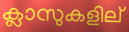
ക്ലാസുകളില്